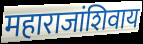
महाराजांशिवाय